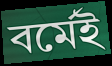
বর্মেই